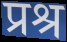
प्रश्र